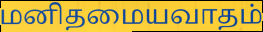
மனிதமையவாதம்